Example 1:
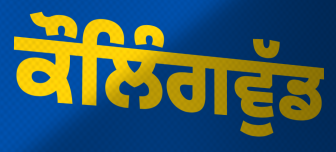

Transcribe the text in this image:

ਕੌਲਿੰਗਵੁੱਡ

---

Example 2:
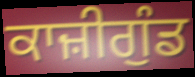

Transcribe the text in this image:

ਕਾਜ਼ੀਗੁੰਡ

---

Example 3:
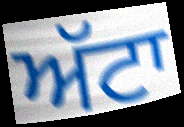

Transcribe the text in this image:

ਅੱਟਾ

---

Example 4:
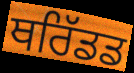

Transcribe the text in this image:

ਥਰਿੱਡਡ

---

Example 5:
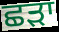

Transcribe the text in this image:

ਛਡ਼ਾ